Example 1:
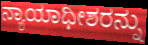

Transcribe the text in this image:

ನ್ಯಾಯಾಧೀಶರನ್ನು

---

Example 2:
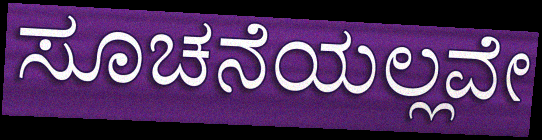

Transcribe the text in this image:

ಸೂಚನೆಯಲ್ಲವೇ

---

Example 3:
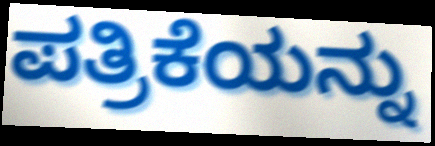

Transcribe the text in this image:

ಪತ್ರಿಕೆಯನ್ನು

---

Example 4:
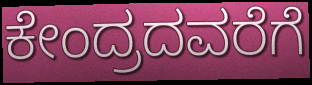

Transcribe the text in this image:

ಕೇಂದ್ರದವರೆಗೆ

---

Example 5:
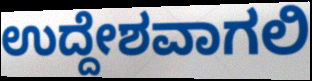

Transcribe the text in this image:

ಉದ್ದೇಶವಾಗಲಿ